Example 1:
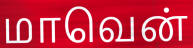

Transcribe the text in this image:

மாவென்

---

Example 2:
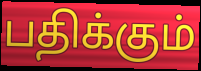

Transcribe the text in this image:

பதிக்கும்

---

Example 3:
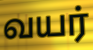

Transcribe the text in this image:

வயர்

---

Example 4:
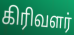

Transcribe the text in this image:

கிரிவளர்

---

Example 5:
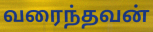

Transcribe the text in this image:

வரைந்தவன்